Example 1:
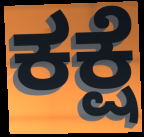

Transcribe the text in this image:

ಕಕ್ಷೆ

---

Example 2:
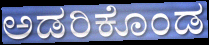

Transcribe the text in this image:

ಅಡರಿಕೊಂಡ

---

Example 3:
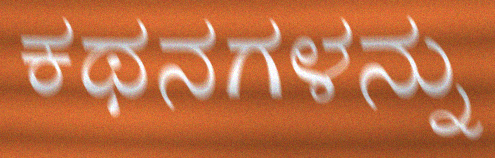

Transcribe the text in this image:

ಕಥನಗಳನ್ನು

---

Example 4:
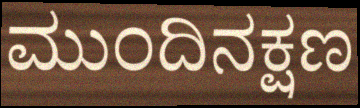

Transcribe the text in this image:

ಮುಂದಿನಕ್ಷಣ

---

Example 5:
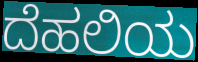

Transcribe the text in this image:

ದೆಹಲಿಯ